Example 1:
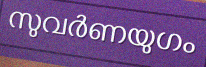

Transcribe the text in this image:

സുവർണയുഗം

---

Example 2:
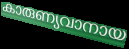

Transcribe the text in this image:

കാരുണ്യവാനായ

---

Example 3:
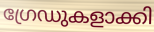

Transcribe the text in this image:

ഗ്രേഡുകളാക്കി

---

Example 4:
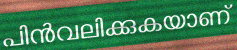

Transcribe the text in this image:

പിൻവലിക്കുകയാണ്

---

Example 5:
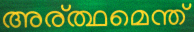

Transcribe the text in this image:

അര്ത്ഥമെന്ത്